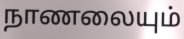
நாணலையும்